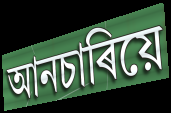
আনচাৰিয়ে